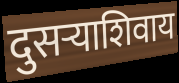
दुसऱ्याशिवाय